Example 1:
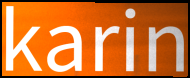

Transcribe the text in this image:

karin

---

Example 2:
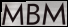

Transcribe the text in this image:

MBM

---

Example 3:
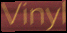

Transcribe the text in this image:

Vinyl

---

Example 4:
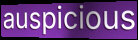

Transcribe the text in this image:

auspicious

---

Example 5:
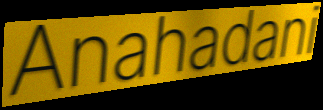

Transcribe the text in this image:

Anahadani